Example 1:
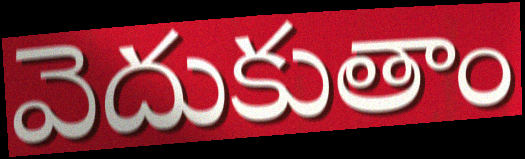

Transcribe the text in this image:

వెదుకుతాం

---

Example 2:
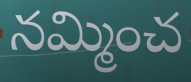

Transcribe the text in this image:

నమ్మించ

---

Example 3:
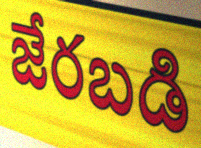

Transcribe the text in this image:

జేరబడి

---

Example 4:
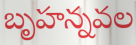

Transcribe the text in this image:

బృహన్నవల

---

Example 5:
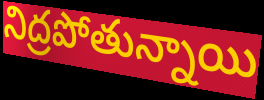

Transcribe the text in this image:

నిద్రపోతున్నాయి